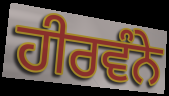
ਹੀਰਵੰਨੇ